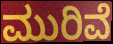
ಮುರಿವೆ